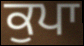
ਕੁਪਾ